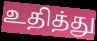
உதித்து